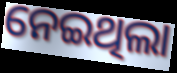
ନେଇଥିଲା